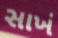
સાખં